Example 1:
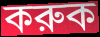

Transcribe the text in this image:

করুক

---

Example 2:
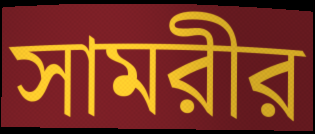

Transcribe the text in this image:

সামরীর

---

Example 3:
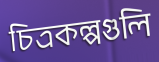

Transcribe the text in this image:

চিত্রকল্পগুলি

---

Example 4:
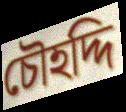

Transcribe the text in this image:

চৌহদ্দি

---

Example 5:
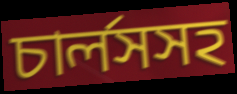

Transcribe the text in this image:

চার্লসসহ